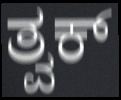
ತ್ವಕ್